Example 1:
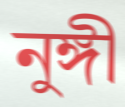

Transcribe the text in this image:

নুঙ্গী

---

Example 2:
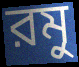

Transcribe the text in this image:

রমু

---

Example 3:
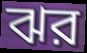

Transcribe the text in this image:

ঝর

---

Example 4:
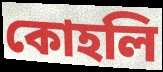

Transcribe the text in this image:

কোহলি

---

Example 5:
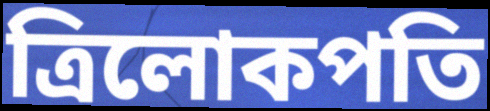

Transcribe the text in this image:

ত্রিলোকপতি